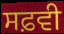
ਸਫ਼ਵੀ